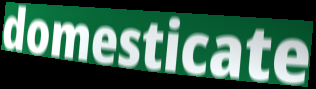
domesticate